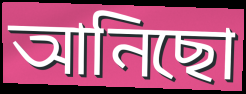
আনিছো